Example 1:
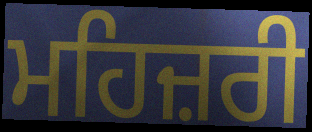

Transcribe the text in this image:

ਮਹਿਜ਼ਰੀ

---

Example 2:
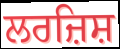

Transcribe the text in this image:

ਲਰਜ਼ਿਸ਼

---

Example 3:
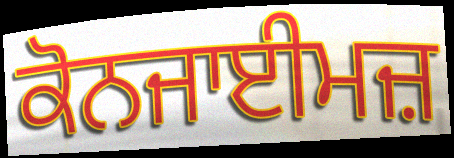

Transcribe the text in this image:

ਕੋਨਜਾਈਮਜ਼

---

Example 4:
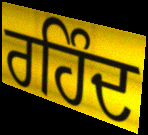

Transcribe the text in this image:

ਰਹਿੰਦ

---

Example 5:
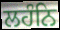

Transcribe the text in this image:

ਲਹੰਨਿ